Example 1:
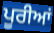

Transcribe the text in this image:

ਪੂਰੀਆਂ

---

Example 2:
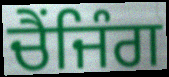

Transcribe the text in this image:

ਚੈਂਜਿੰਗ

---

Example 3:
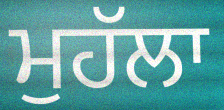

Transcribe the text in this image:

ਮੁਹੱਲਾ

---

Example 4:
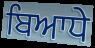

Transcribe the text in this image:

ਬਿਆਧੇ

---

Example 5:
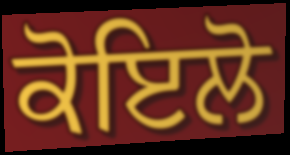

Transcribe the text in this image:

ਕੋਇਲੋ